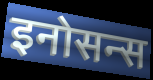
इनोसन्स